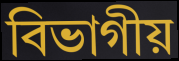
বিভাগীয়